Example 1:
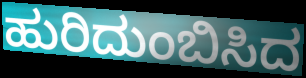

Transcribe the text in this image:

ಹುರಿದುಂಬಿಸಿದ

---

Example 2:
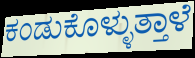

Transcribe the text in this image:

ಕಂಡುಕೊಳ್ಳುತ್ತಾಳೆ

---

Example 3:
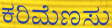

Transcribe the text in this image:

ಕರಿಮೆಣಸು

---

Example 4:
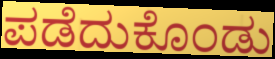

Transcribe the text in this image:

ಪಡೆದುಕೊಂಡು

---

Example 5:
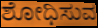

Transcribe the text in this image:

ಶೋಧಿಸುವ